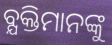
ବ୍ଯକ୍ତିମାନଙ୍କୁ